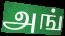
அங்